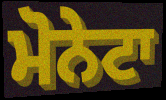
ਮੋਨੇਟਾ